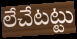
లేచేటట్టు